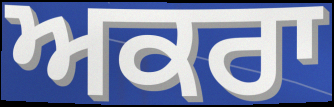
ਅਕਰਾ